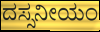
ದಸ್ಸನೀಯಂ